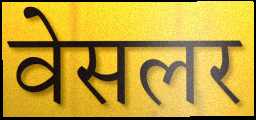
वेसलर